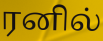
ரனில்